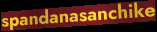
spandanasanchike